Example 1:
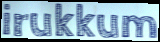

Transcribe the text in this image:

irukkum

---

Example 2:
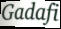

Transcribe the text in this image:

Gadafi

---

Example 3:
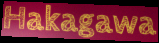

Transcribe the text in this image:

Hakagawa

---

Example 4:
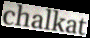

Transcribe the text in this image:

chalkat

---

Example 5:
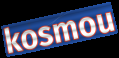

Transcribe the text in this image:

kosmou